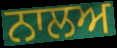
ਨਾਲਅ